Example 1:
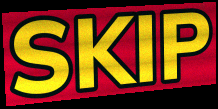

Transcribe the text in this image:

SKIP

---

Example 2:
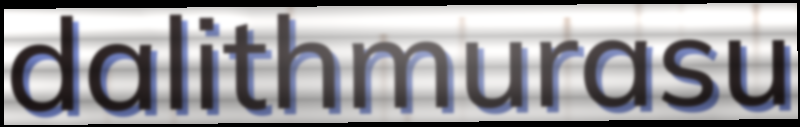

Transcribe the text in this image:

dalithmurasu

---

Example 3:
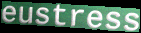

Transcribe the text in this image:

eustress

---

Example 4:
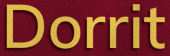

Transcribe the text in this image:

Dorrit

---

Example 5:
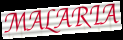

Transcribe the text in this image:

MALARIA